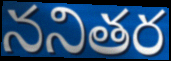
ననితర